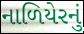
નાળિયેરનું